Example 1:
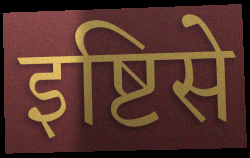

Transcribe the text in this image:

इष्टिसे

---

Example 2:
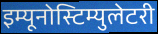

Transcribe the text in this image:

इम्यूनोस्टिम्युलेटरी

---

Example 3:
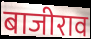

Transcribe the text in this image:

बाजीराव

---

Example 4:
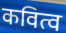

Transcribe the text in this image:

कवित्व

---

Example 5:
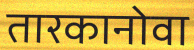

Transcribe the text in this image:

तारकानोवा